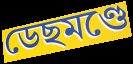
ডেছমণ্ডে